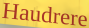
Haudrere